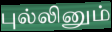
புல்லினும்